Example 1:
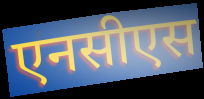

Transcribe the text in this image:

एनसीएस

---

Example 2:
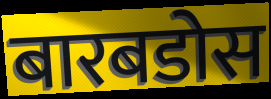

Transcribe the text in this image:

बारबडोस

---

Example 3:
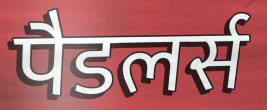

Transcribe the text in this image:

पैडलर्स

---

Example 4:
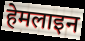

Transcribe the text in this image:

हेमलाइन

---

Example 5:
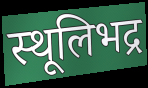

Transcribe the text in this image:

स्थूलिभद्र